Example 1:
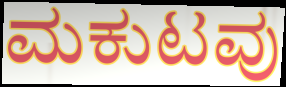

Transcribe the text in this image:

ಮಕುಟವು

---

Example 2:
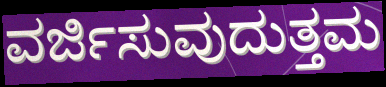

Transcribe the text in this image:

ವರ್ಜಿಸುವುದುತ್ತಮ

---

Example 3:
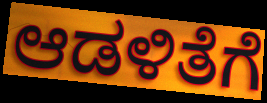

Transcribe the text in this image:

ಆಡಳಿತೆಗೆ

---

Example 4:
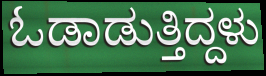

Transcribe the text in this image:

ಓಡಾಡುತ್ತಿದ್ದಳು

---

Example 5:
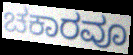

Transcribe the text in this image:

ಚಕಾರವೂ